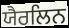
ਯੈਰਲਿਨ